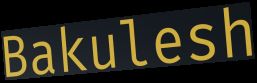
Bakulesh